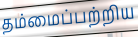
தம்மைப்பற்றிய